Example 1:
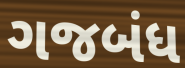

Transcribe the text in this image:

ગજબંધ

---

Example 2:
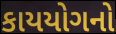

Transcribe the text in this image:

કાયયોગનો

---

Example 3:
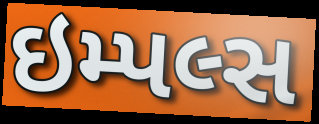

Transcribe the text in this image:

ઇમ્પલ્સ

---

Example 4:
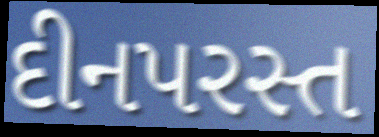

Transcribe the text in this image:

દીનપરસ્ત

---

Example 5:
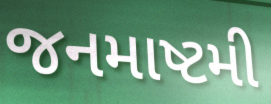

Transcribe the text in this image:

જનમાષ્ટમી